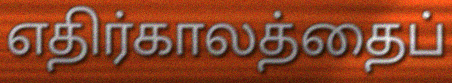
எதிர்காலத்தைப்